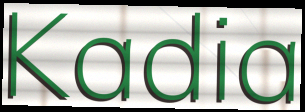
Kadia